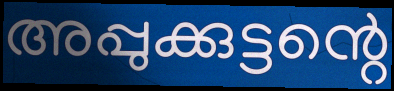
അപ്പുക്കുട്ടന്റെ